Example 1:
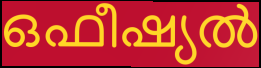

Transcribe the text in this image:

ഒഫീഷ്യൽ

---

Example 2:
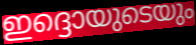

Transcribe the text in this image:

ഇദ്ദൊയുടെയും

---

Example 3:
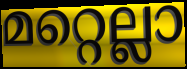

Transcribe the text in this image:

മറ്റെല്ലാ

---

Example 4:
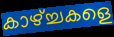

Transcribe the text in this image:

കാഴ്ച്ചകളെ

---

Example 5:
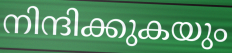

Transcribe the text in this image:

നിന്ദിക്കുകയും